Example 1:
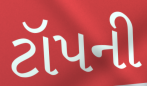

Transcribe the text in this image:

ટૉપની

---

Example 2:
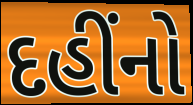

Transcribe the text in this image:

દહીંનો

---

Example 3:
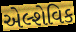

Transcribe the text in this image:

એલ્શેવિક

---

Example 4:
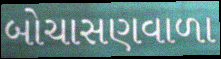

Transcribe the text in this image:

બોચાસણવાળા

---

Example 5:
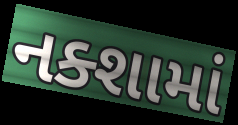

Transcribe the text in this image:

નક્શામાં